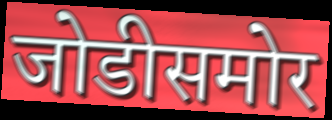
जोडीसमोर